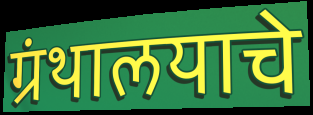
ग्रंथालयाचे